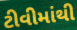
ટીવીમાંથી